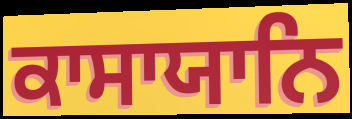
ਕਾਸਾਯਾਨਿ